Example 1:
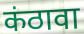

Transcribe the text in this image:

कंठावा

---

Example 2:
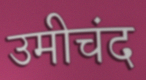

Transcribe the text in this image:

उमीचंद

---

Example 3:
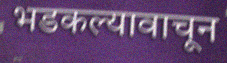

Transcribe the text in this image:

भडकल्यावाचून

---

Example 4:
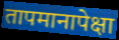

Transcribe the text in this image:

तापमानापेक्षा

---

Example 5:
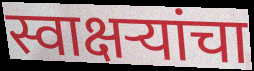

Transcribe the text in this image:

स्वाक्षऱ्यांचा